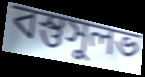
বস্তুসুলভ